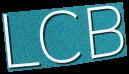
LCB